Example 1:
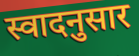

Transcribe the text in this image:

स्वादनुसार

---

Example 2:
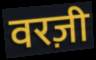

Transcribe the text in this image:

वरज़ी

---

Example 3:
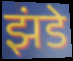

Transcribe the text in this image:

झंडे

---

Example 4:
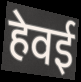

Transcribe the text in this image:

हेवई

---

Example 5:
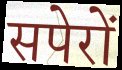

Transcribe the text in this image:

सपेरों